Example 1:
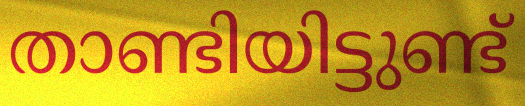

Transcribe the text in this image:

താണ്ടിയിട്ടുണ്ട്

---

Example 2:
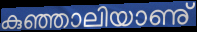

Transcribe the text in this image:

കുഞ്ഞാലിയാണു്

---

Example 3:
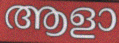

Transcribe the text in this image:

ആളാ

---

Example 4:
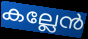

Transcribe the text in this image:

കല്ലേൻ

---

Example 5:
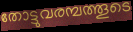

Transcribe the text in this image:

തോട്ടുവരമ്പത്തൂടെ